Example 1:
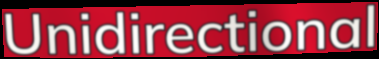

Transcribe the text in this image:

Unidirectional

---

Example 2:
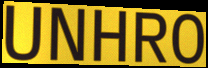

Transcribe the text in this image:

UNHRO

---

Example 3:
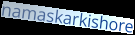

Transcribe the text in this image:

namaskarkishore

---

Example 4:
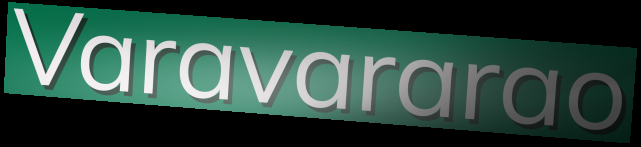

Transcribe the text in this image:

Varavararao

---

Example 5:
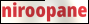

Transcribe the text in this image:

niroopane